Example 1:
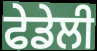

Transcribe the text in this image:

ਫੇਡੇਲੀ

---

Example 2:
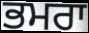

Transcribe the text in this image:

ਭਮਰਾ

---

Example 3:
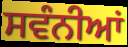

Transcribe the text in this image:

ਸਵੰਨੀਆਂ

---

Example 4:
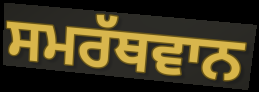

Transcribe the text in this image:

ਸਮਰੱਥਵਾਨ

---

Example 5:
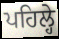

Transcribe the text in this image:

ਪਹਿਲ੍ਹੇ